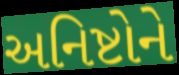
અનિષ્ટોને